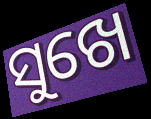
ସୁଖେ